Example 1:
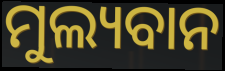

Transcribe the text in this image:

ମୁଲ୍ୟବାନ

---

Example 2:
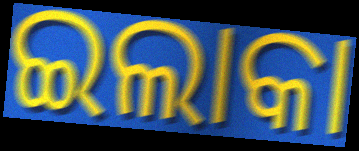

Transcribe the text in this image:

ଇଲାକା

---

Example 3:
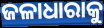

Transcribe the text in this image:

ଜଳାଧାରାକୁ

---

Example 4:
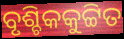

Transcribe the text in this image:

ବୃଶ୍ଚିକକୁଟ୍ଟିତ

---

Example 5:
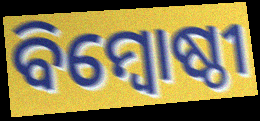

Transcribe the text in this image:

ବିମ୍ବୋଷ୍ଠୀ